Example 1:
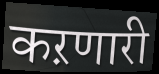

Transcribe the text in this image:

कऱणारी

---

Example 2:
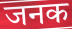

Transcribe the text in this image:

जनक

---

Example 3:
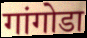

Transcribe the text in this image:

गांगोडा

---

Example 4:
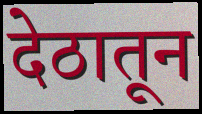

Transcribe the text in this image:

देठातून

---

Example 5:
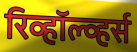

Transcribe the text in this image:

रिव्हॉल्व्हर्स